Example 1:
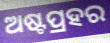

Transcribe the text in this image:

ଅଷ୍ଟପ୍ରହର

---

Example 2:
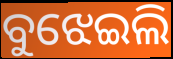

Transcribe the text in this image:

ବୁଝେଇଲି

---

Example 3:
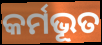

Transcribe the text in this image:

କର୍ମଭୂତ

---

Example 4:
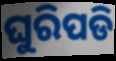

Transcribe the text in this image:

ଘୁରିପଡି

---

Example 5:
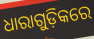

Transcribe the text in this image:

ଧାରାଗୁଡ଼ିକରେ